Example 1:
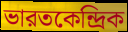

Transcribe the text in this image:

ভারতকেন্দ্রিক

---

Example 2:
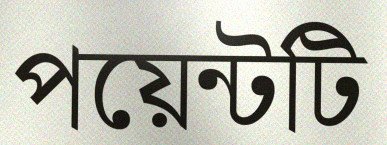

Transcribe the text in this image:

পয়েন্টটি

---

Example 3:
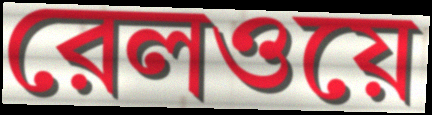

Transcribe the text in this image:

রেলওয়ে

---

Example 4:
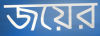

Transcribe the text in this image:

জয়ের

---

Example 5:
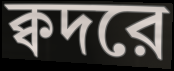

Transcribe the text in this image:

ক্বদরে